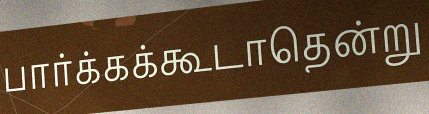
பார்க்கக்கூடாதென்று